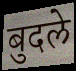
बुदले